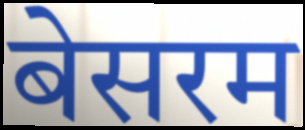
बेसरम